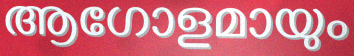
ആഗോളമായും